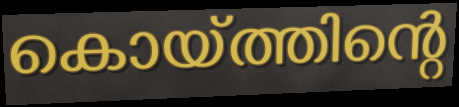
കൊയ്ത്തിന്റെ